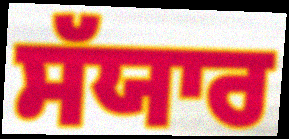
ਸੱਯਾਰ